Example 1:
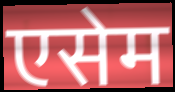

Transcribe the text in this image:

एसेम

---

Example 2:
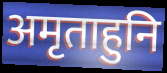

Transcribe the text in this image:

अमृताहुनि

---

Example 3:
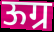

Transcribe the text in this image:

ऊग्र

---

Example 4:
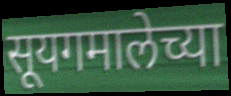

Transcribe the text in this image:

सूयगमालेच्या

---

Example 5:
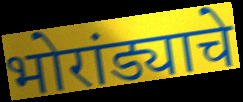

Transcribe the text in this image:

भोरांड्याचे